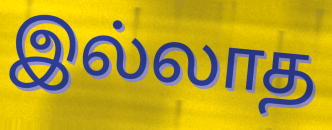
இல்லாத